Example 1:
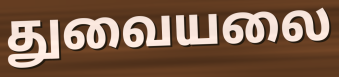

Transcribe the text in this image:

துவையலை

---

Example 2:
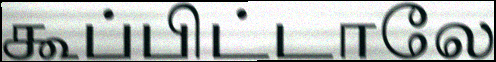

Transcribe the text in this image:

கூப்பிட்டாலே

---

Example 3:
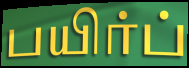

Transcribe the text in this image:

பயிர்ப்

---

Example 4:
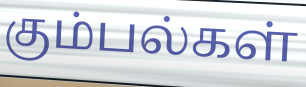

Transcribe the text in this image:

கும்பல்கள்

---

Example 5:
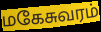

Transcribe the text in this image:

மகேசுவரம்